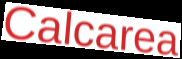
Calcarea